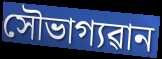
সৌভাগ্যৱান